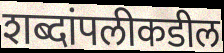
शब्दांपलीकडील